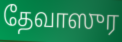
தேவாஸுர